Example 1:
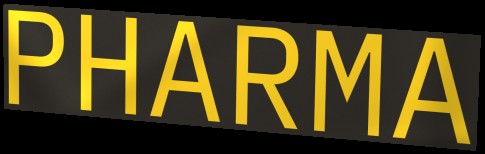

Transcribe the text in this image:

PHARMA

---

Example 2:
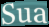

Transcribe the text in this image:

Sua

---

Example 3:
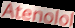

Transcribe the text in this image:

Atenolol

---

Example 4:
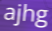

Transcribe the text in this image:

ajhg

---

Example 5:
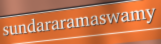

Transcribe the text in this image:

sundararamaswamy